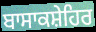
ਬਾਸਾਕਸ਼ੇਹਿਰ